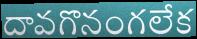
దావగొనంగలేక